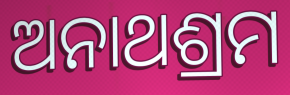
ଅନାଥଶ୍ରମ